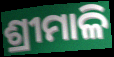
ଶ୍ରୀମାଳି